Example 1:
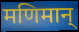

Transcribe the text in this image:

मणिमान्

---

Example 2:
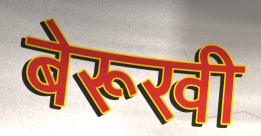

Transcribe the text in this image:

बेरूखी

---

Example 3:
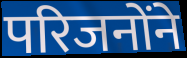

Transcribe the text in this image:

परिजनोंने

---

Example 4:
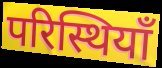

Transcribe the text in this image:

परिस्थियाँ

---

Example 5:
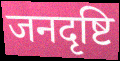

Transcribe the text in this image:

जनदृष्टि